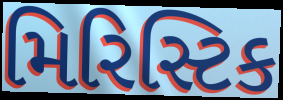
મિરિસ્ટિક